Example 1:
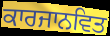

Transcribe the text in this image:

ਕਾਰਜਾਨਵਿਤ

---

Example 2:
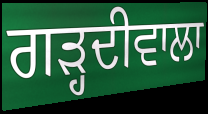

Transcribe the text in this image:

ਗਡ਼੍ਹਦੀਵਾਲਾ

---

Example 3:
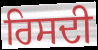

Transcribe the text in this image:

ਰਿਸਦੀ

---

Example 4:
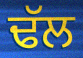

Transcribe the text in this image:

ਢੱਲ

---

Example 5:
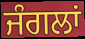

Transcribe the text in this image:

ਜੰਗਲਾਂ